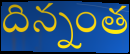
దిన్నంత